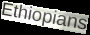
Ethiopians